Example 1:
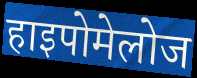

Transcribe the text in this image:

हाइपोमेलोज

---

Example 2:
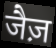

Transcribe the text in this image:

जैज़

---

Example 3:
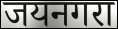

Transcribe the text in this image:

जयनगरा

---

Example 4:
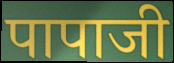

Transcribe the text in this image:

पापाजी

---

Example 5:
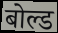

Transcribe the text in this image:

बोल्ड